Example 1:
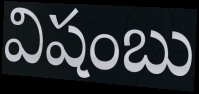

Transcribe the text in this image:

విషంబు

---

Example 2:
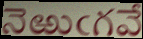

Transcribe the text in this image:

నెఱుఁగవే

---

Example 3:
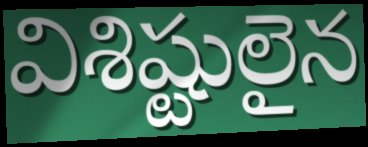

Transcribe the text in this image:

విశిష్టులైన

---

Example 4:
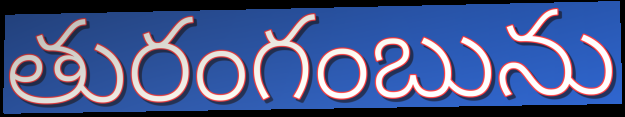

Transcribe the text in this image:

తురంగంబును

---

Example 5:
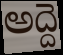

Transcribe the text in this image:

అద్దె